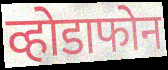
व्होडाफोन